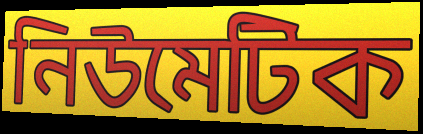
নিউমেটিক